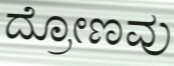
ದ್ರೋಣವು